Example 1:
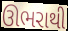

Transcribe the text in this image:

ઊભરાથી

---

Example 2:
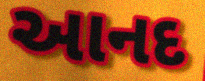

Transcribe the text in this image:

આનદ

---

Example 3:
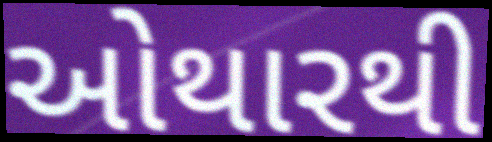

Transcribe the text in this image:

ઓથારથી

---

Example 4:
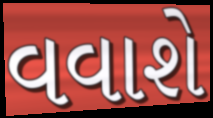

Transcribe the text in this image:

વવાશે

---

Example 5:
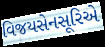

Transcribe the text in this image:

વિજયસેનસૂરિએ